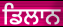
ਡਿਲਾਨ